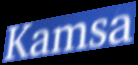
Kamsa